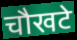
चौखटे